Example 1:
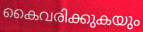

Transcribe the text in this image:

കൈവരിക്കുകയും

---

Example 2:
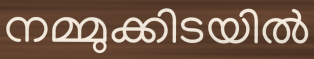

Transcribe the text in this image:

നമ്മുക്കിടയിൽ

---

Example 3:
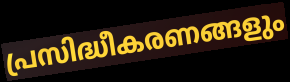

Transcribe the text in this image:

പ്രസിദ്ധീകരണങ്ങളും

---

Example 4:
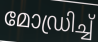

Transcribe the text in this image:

മോഡ്രിച്ച്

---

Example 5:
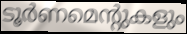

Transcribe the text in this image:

ടൂർണമെന്റുകളും